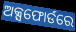
ଅକ୍ସଫୋର୍ଡରେ